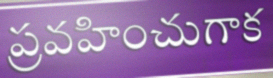
ప్రవహించుగాక